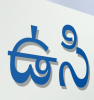
ఉసి